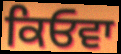
ਕਿਓਵਾ